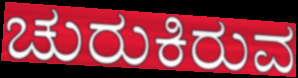
ಚುರುಕಿರುವ